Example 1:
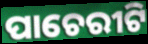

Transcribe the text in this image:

ପାଚେରୀଟି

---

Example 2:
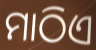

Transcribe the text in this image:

ମାଠିଏ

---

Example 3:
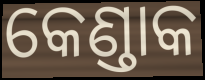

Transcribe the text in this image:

କେଣ୍ଡାକ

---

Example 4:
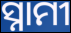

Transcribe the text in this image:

ସ୍ନାମୀ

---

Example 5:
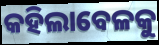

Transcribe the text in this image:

କହିଲାବେଳକୁ